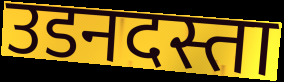
उडनदस्ता